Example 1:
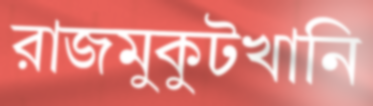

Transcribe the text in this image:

রাজমুকুটখানি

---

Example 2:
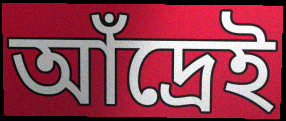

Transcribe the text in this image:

আঁদ্রেই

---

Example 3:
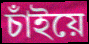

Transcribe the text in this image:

চাঁইয়ে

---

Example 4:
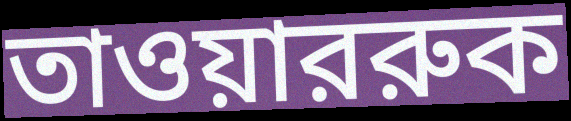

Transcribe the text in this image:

তাওয়াররুক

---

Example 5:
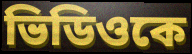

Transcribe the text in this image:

ভিডিওকে